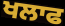
ਖਲਾਫ